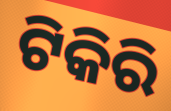
ଟିକିରି